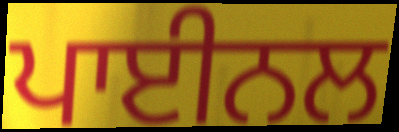
ਪਾਈਨਲ